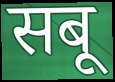
सबू